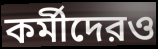
কর্মীদেরও